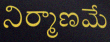
నిర్మాణమే